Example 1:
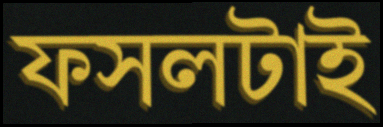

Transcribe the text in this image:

ফসলটাই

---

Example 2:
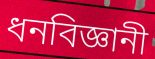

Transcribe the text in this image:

ধনবিজ্ঞানী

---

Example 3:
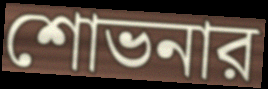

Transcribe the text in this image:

শোভনার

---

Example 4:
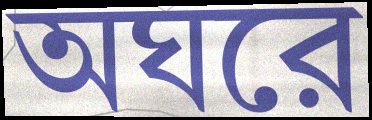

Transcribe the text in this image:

অঘরে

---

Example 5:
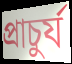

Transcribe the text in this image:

প্রাচুর্য